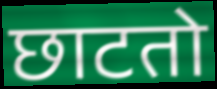
छाटतो